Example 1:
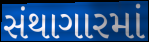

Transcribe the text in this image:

સંથાગારમાં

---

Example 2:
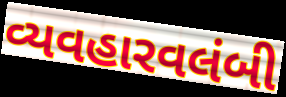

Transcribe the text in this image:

વ્યવહારવલંબી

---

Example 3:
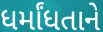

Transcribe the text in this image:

ધર્માંધતાને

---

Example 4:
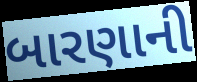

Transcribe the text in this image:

બારણાની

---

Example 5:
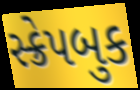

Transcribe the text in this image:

સ્ક્રેપબુક